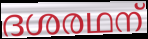
ദശരഥന്